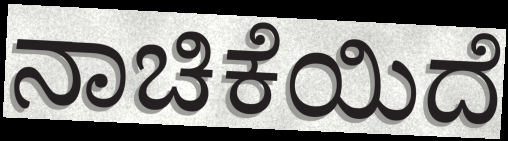
ನಾಚಿಕೆಯಿದೆ